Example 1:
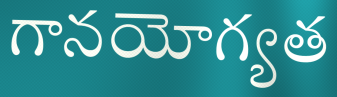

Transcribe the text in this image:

గానయోగ్యత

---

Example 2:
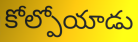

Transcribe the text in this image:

కోల్పోయాడు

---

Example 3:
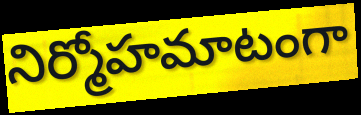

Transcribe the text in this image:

నిర్మోహమాటంగా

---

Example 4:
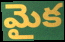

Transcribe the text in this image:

మైక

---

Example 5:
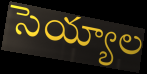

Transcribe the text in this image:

సెయ్యాల